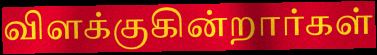
விளக்குகின்றார்கள்